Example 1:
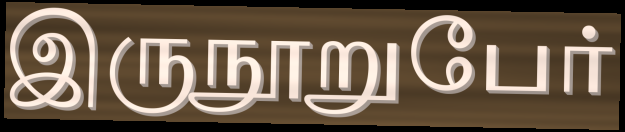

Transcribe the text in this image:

இருநூறுபேர்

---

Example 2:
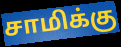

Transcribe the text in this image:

சாமிக்கு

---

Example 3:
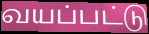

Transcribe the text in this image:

வயப்பட்டு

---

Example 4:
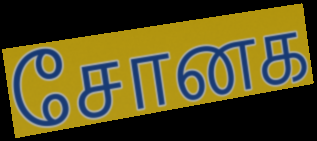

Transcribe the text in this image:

சோனக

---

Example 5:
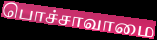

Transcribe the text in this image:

பொச்சாவாமை